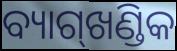
ବ୍ୟାଗ୍‌ଖଣ୍ଡିକ